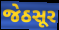
જેઠસૂર